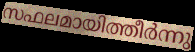
സഫലമായിത്തീർന്നു